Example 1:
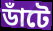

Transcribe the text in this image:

ডাঁটে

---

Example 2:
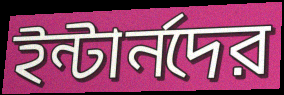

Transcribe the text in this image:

ইন্টার্নদের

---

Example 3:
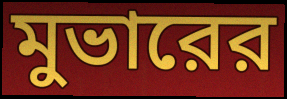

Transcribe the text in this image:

মুভারের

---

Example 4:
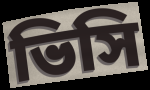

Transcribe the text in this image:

ভিসি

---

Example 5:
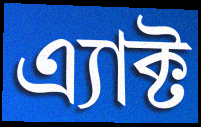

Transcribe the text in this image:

এ্যাক্ট